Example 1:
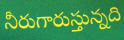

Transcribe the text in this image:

నీరుగారుస్తున్నది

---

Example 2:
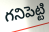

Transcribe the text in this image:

గనిపెట్టి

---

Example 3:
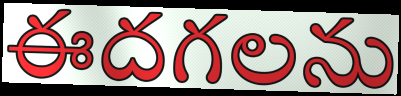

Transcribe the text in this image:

ఈదగలను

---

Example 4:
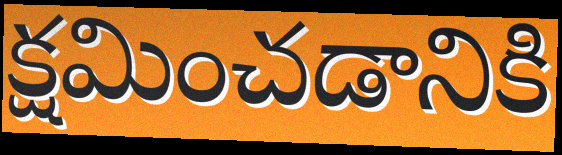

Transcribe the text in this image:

క్షమించడానికి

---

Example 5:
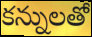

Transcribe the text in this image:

కన్నులతో